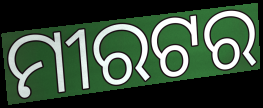
ମୀରଟର